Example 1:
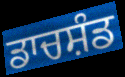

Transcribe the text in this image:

ਡਾਚਸ਼ੰਡ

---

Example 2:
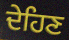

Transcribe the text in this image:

ਦੇਹਿਣ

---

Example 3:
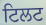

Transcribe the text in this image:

ਟਿਲਟ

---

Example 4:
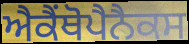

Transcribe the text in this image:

ਐਕੈਂਥੋਪੈਨੈਕਸ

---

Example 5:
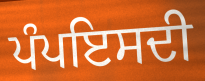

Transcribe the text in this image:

ਪੰਪਇਸਦੀ